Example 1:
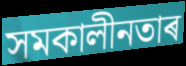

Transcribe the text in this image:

সমকালীনতাৰ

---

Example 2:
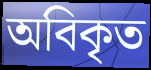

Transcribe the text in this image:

অবিকৃত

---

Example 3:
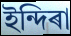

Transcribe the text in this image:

ইন্দিৰা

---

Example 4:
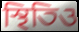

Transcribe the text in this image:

স্থিতিও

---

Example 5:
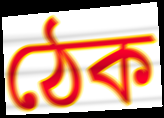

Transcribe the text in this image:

ঠেক